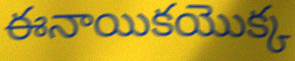
ఈనాయికయొక్క